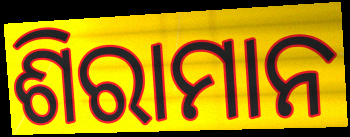
ଶିରାମାନ